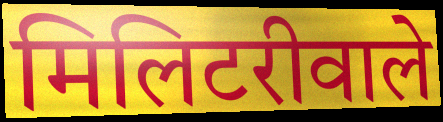
मिलिटरीवाले